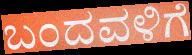
ಬಂದವಳಿಗೆ